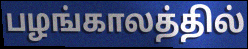
பழங்காலத்தில்